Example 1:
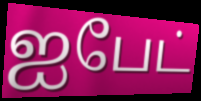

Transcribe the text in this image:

ஐபேட்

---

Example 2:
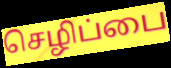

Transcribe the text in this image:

செழிப்பை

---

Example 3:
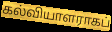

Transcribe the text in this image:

கல்வியாளராகப்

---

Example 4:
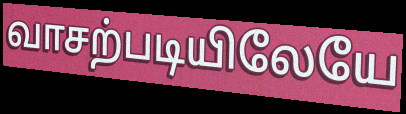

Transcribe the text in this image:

வாசற்படியிலேயே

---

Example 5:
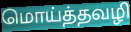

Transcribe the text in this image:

மொய்த்தவழி